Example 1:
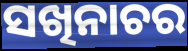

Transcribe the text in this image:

ସଖିନାଚର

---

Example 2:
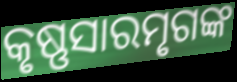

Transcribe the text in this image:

କୃଷ୍ଣସାରମୃଗଙ୍କ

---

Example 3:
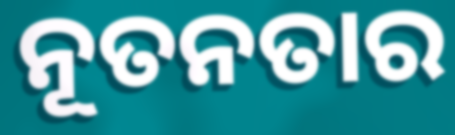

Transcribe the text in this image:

ନୂତନତାର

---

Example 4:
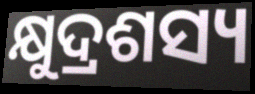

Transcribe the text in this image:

କ୍ଷୁଦ୍ରଶସ୍ୟ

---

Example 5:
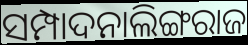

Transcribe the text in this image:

ସମ୍ପାଦନାଲିଙ୍ଗରାଜ